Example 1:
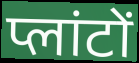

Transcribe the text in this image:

प्लांटों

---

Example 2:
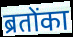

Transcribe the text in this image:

ब्रतोंका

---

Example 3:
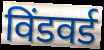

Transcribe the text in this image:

विंडवर्ड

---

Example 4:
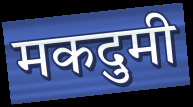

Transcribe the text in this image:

मकदुमी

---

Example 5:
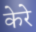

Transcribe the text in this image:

केरे